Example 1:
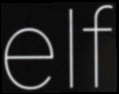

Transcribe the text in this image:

elf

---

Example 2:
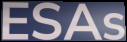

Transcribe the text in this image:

ESAs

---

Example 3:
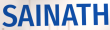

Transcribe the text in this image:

SAINATH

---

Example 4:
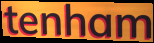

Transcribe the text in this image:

tenham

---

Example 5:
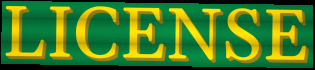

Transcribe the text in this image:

LICENSE